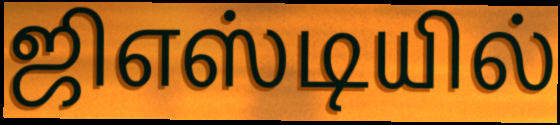
ஜிஎஸ்டியில்